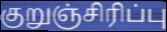
குறுஞ்சிரிப்பு